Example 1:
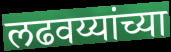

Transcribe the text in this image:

लढवय्यांच्या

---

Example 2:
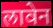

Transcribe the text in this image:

लावेन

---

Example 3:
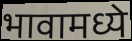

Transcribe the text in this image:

भावामध्ये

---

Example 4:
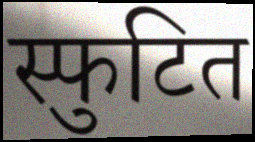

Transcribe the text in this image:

स्फुटित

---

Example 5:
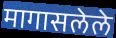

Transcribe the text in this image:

मागासलेले